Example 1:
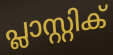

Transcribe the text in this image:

പ്ലാസ്റ്റിക്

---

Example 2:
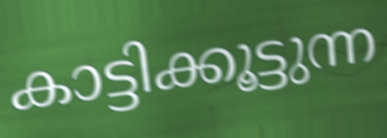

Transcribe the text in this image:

കാട്ടിക്കൂട്ടുന്ന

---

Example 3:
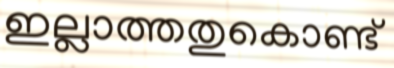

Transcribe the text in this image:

ഇല്ലാത്തതുകൊണ്ട്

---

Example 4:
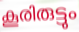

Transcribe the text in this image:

കൂരിരുട്ടും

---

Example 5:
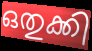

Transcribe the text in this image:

ഒതുക്കി